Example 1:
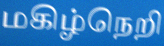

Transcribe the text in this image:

மகிழ்நெறி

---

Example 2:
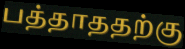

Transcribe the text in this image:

பத்தாததற்கு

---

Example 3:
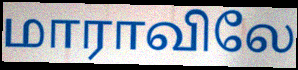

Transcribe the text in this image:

மாராவிலே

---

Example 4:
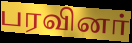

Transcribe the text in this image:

பரவினர்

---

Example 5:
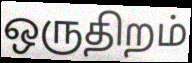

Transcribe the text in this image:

ஒருதிறம்